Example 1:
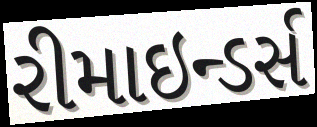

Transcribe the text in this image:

રીમાઇન્ડર્સ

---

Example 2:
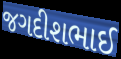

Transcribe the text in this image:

જગદીશભાઈ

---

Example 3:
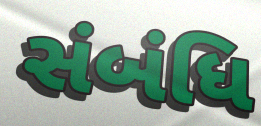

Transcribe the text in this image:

સંબંધિ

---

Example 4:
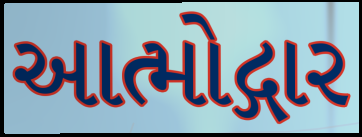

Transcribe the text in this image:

આત્મોદ્ગાર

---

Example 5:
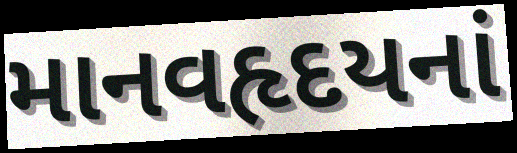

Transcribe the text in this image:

માનવહૃદયનાં